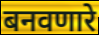
बनवणारे